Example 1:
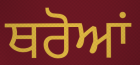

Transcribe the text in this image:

ਥਰੋਆਂ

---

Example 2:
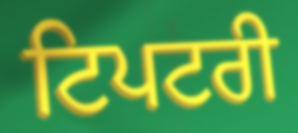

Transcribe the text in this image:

ਟਿਪਟਰੀ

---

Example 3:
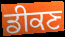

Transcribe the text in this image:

ਡੀਕਣ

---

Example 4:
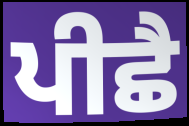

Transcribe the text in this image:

ਪੀਛੈ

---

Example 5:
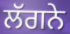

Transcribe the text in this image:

ਲੱਗਨੇ